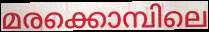
മരക്കൊമ്പിലെ